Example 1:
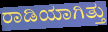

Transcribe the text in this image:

ರಾಡಿಯಾಗಿತ್ತು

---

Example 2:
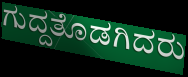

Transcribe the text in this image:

ಗುದ್ದತೊಡಗಿದರು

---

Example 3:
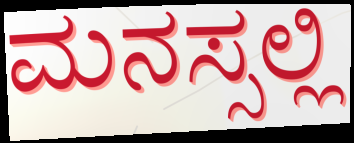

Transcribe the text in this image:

ಮನಸ್ಸಲ್ಲಿ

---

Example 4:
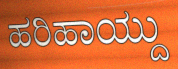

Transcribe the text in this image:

ಹರಿಹಾಯ್ದು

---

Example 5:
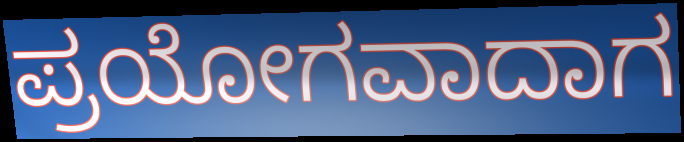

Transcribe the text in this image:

ಪ್ರಯೋಗವಾದಾಗ